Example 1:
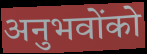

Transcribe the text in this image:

अनुभवोंको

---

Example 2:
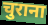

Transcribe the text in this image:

चुराना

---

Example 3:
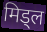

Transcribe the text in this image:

मिड्ल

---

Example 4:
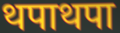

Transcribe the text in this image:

थपाथपा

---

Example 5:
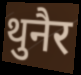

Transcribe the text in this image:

थुनैर